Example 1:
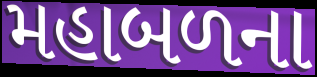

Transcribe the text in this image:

મહાબળના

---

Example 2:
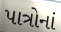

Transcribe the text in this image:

પાત્રોનાં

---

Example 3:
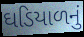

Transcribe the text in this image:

ઘડિયાળનું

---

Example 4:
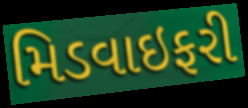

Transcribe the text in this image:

મિડવાઇફરી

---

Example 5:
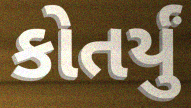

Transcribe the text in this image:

કોતર્યું